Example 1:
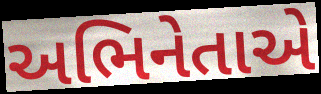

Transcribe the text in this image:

અભિનેતાએ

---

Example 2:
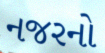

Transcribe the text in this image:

નજરનો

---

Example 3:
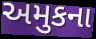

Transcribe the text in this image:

અમુકના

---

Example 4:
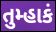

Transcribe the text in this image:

તુમ્હાકં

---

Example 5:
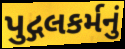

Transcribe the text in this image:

પુદ્ગલકર્મનું